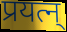
प्रयत्न्